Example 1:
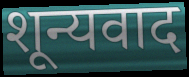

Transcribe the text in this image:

शून्यवाद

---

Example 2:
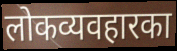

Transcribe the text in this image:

लोकव्यवहारका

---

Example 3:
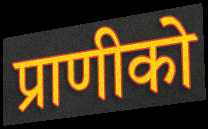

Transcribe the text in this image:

प्राणीको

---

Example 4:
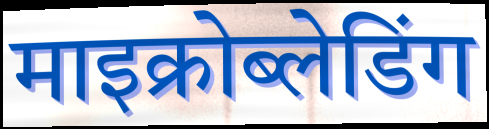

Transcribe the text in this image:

माइक्रोब्लेडिंग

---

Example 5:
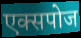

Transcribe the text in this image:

एक्सपोज